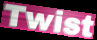
Twist